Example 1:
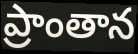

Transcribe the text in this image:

ప్రాంతాన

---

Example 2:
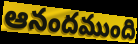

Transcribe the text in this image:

ఆనందముంది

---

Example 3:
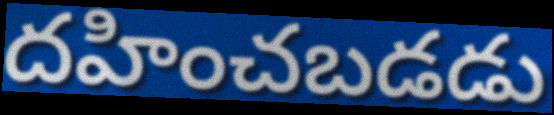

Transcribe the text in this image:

దహించబడడు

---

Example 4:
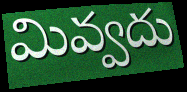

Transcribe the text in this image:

మివ్వదు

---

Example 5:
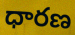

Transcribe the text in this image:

ధారణ